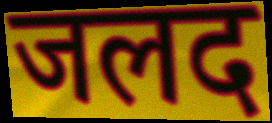
जलद